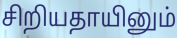
சிறியதாயினும்